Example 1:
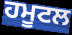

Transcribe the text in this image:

ਹਮੂਟਲ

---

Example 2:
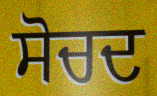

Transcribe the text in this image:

ਸੋਚਦ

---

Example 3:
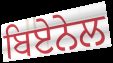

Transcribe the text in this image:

ਬਿਏਨੇਲ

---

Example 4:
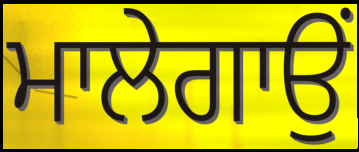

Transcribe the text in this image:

ਮਾਲੇਗਾਉਂ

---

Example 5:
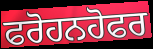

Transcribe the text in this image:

ਫਰੋਹਨਹੋਫਰ